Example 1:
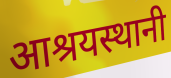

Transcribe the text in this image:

आश्रयस्थानी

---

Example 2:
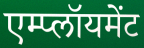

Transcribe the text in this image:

एम्प्लॉयमेंट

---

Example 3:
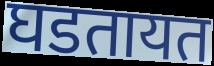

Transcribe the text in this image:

घडतायत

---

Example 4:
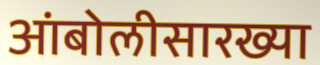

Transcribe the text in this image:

आंबोलीसारख्या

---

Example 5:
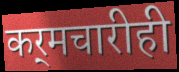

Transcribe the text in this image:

कर्मचारीही